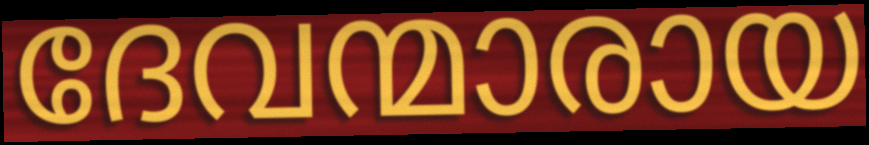
ദേവന്മാരായ